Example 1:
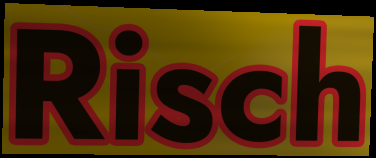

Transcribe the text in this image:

Risch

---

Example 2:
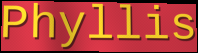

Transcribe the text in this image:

Phyllis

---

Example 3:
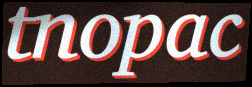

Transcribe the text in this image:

tnopac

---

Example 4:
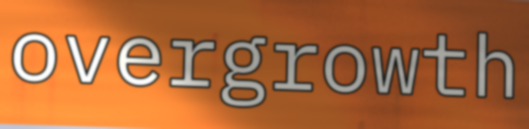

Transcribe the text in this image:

overgrowth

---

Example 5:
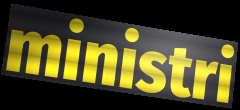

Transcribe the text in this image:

ministri